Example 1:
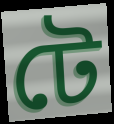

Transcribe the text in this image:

টে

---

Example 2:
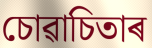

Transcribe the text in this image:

চোৱাচিতাৰ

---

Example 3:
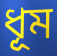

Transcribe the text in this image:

ধূম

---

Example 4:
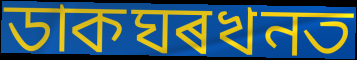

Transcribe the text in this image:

ডাকঘৰখনত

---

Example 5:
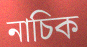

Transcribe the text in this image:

নাচিক